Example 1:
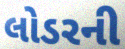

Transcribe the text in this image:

લોડરની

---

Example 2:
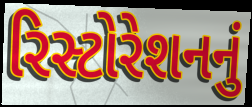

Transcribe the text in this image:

રિસ્ટોરેશનનું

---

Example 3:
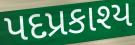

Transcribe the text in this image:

પદપ્રકાશ્ય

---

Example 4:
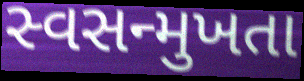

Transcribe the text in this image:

સ્વસન્મુખતા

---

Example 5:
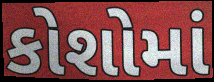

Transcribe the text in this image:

કોશોમાં